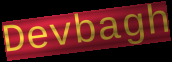
Devbagh